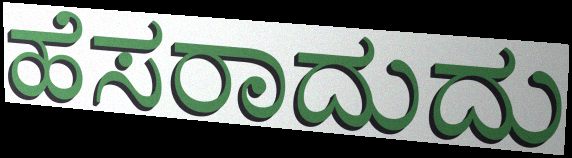
ಹೆಸರಾದುದು